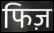
फिज़